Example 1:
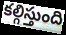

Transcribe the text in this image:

కల్గిస్తుంది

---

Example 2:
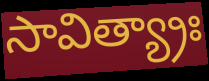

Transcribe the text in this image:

సావిత్య్రాః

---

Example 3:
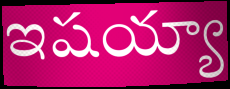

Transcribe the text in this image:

ఇషయ్యా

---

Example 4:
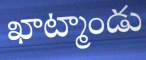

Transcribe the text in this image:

ఖాట్మాండు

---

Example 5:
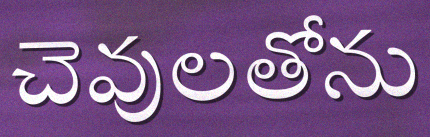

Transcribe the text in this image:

చెవులతోను